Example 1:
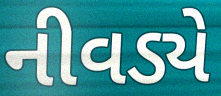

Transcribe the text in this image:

નીવડ્યે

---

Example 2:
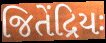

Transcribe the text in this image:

જિતેંદ્રિયઃ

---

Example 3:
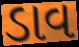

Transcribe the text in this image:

ડાવ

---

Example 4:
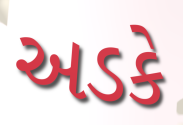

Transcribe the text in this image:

અડકે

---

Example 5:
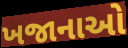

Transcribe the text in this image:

ખજાનાઓ